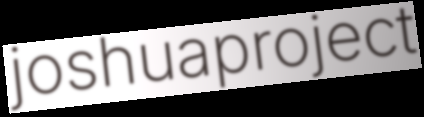
joshuaproject